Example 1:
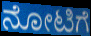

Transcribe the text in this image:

ನೋಟಿಗೆ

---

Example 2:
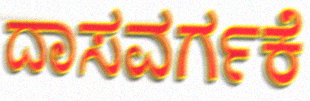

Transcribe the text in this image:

ದಾಸವರ್ಗಕೆ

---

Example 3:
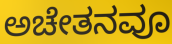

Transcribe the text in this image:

ಅಚೇತನವೂ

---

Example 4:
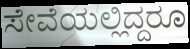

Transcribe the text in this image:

ಸೇವೆಯಲ್ಲಿದ್ದರೂ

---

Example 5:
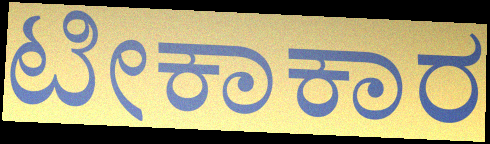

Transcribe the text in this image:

ಟೀಕಾಕಾರ